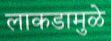
लाकडामुळे